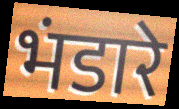
भंडारे